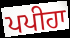
ਪਪੀਹਾ